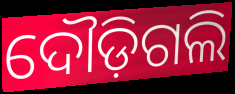
ଦୌଡ଼ିଗଲି